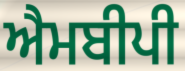
ਐਮਬੀਪੀ